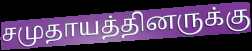
சமுதாயத்தினருக்கு